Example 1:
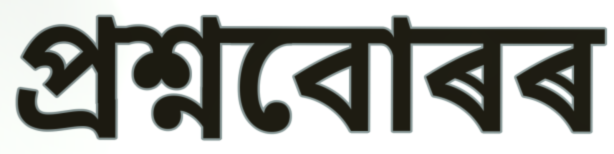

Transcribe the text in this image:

প্ৰশ্নবোৰৰ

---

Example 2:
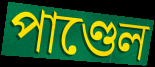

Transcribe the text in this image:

পাণ্ডেল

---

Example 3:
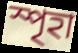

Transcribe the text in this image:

স্পৃহা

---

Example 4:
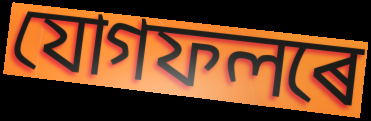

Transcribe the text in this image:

যোগফলৰে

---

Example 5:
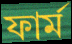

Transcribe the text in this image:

ফাৰ্ম